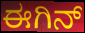
ಈಗಿನ್